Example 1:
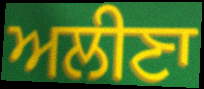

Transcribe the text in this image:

ਅਲੀਣਾ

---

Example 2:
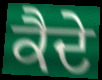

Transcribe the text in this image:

ਕੈਦੇ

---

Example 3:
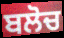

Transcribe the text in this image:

ਬਲੋਚ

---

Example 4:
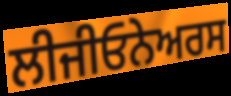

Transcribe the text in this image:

ਲੀਜੀਓਨੇਅਰਸ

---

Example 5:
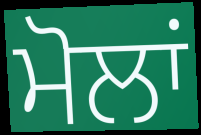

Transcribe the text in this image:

ਮੋਲਾਂ